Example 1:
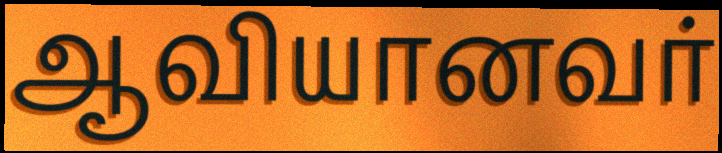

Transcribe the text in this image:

ஆவியானவர்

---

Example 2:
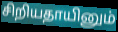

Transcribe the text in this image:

சிறியதாயினும்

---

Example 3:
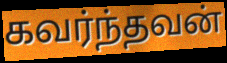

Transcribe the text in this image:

கவர்ந்தவன்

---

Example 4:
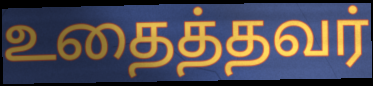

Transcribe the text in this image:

உதைத்தவர்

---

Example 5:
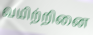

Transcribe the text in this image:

வயிற்றினை